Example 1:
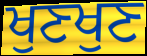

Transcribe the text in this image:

ਖੁਣਖੁਣ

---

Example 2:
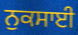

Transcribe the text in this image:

ਨੁਕਸਾਈ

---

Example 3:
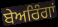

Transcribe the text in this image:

ਬੇਅਰਿੰਗਾਂ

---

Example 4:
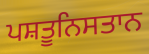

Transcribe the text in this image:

ਪਸ਼ਤੂਨਿਸਤਾਨ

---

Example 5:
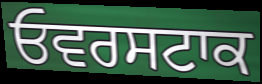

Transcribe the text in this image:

ਓਵਰਸਟਾਕ